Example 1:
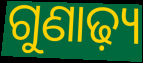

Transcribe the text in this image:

ଗୁଣାଢ଼୍ୟ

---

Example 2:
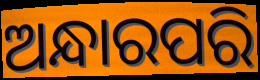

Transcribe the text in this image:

ଅନ୍ଧାରପରି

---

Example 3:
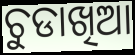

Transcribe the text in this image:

ଚୁଡାଖିଆ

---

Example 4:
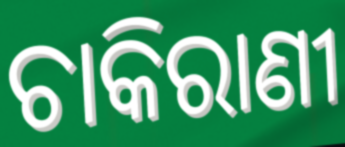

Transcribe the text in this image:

ଚାକିରାଣୀ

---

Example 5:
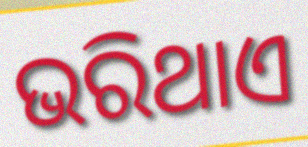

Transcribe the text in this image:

ଭରିଥାଏ